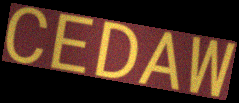
CEDAW